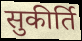
सुकीर्ति